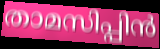
താമസിപ്പിൻ